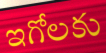
ఇగోలకు